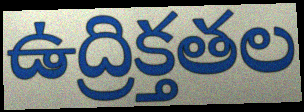
ఉద్రిక్తతల